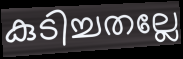
കുടിച്ചതല്ലേ